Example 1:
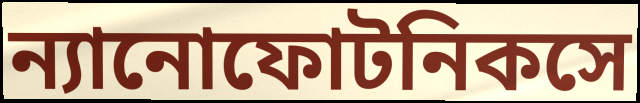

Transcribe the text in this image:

ন্যানোফোটনিকসে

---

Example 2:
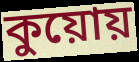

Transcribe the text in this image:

কুয়োয়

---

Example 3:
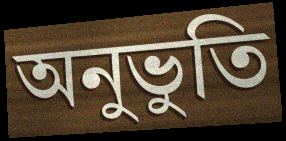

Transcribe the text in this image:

অনুভুতি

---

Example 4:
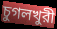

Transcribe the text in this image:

চুগলখুরী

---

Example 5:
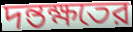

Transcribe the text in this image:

দন্তক্ষতের